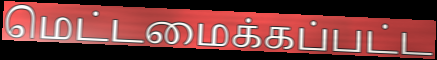
மெட்டமைக்கப்பட்ட